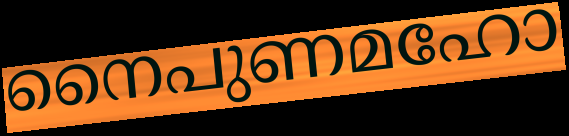
നൈപുണമഹോ